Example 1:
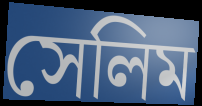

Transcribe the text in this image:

সেলিম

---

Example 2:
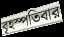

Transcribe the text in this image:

বৃহস্পতিবার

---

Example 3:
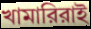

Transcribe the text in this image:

খামারিরাই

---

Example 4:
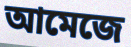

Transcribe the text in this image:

আমেজে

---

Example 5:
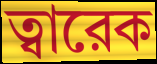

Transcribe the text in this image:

ত্বারেক